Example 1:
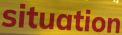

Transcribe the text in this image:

situation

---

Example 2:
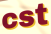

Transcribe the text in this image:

cst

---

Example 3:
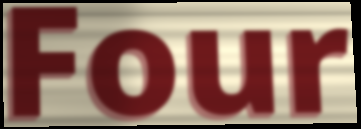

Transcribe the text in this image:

Four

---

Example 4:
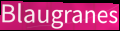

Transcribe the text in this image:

Blaugranes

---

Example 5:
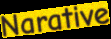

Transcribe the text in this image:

Narative